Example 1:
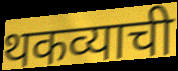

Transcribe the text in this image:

थकव्याची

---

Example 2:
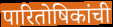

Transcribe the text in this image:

पारितोषिकांची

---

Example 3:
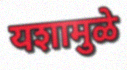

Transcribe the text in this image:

यशामुळे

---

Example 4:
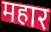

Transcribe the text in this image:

महार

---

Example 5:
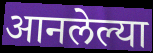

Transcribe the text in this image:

आनलेल्या